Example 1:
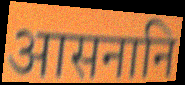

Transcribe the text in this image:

आसनानि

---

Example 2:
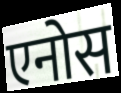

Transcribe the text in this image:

एनोस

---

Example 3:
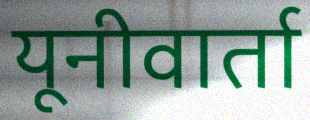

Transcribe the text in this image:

यूनीवार्ता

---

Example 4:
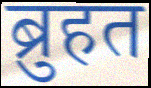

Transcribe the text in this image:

ब्रुहत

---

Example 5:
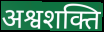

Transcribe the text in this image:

अश्वशक्ति